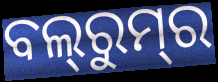
ବଲ୍‍ରୁମ୍‌ର